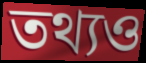
তথ্যও